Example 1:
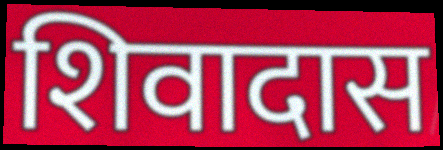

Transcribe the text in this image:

शिवादास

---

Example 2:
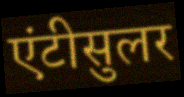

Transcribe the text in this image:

एंटीसुलर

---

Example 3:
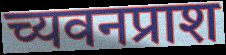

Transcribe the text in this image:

च्‍यवनप्राश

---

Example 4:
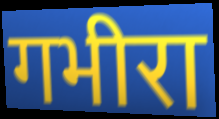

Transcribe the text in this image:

गभीरा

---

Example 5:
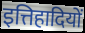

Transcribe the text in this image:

इत्तिहादियों